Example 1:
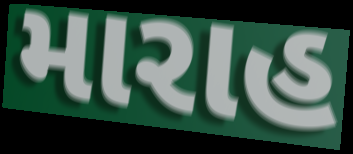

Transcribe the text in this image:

મારાહ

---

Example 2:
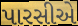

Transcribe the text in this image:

પારસીએ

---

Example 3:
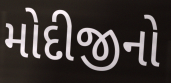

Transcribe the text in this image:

મોદીજીનો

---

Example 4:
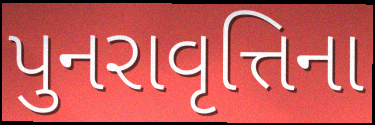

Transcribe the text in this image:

પુનરાવૃત્તિના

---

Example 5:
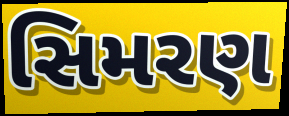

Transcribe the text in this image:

સિમરણ